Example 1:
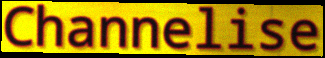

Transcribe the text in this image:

Channelise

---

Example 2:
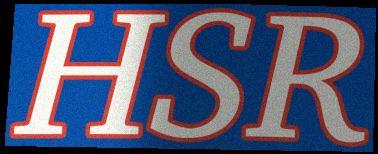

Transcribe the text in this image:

HSR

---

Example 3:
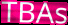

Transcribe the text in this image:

TBAs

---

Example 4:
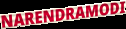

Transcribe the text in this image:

NARENDRAMODI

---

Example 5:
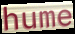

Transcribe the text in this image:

hume